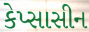
કેપ્સાસીન